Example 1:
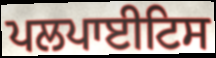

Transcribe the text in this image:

ਪਲਪਾਈਟਿਸ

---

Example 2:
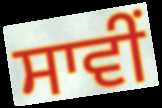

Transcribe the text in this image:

ਸਾਵੀਂ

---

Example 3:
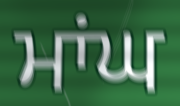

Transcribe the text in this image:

ਮਾਂਘ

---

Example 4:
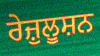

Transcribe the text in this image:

ਰੇਜ਼ੁਲੂਸ਼ਨ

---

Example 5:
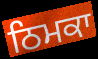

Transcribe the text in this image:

ਠਿਮਕਾ